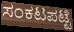
ಸಂಕಟಪಟ್ಟೆ